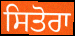
ਸਿਤੋਰਾ